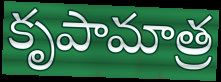
కృపామాత్ర